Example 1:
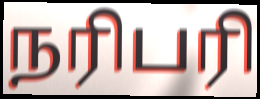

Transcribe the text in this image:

நரிபரி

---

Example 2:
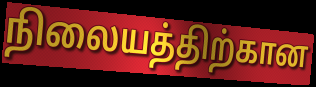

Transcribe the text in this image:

நிலையத்திற்கான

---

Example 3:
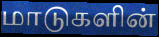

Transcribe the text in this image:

மாடுகளின்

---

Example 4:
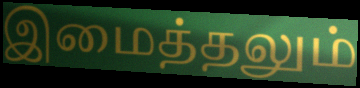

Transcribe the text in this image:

இமைத்தலும்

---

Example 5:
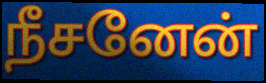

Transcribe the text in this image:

நீசனேன்